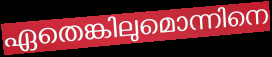
ഏതെങ്കിലുമൊന്നിനെ